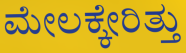
ಮೇಲಕ್ಕೇರಿತ್ತು